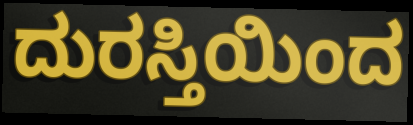
ದುರಸ್ತಿಯಿಂದ